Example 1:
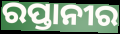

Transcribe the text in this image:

ରପ୍ତାନୀର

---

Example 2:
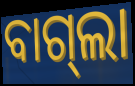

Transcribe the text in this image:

ବାଗ୍‍ଲା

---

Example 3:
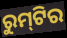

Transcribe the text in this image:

ରୁମ୍‌ଟିର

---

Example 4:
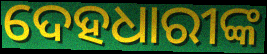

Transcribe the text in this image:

ଦେହଧାରୀଙ୍କ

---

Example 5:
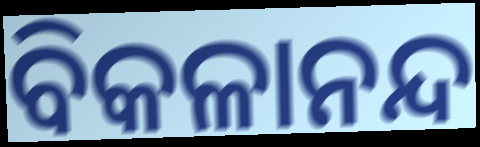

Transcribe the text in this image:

ବିକଳାନନ୍ଦ